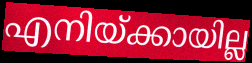
എനിയ്ക്കായില്ല